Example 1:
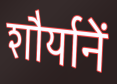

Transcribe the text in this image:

शौर्यानें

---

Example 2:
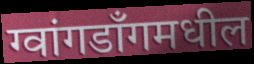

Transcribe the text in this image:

ग्वांगडाँगमधील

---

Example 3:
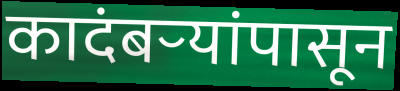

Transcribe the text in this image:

कादंबऱ्यांपासून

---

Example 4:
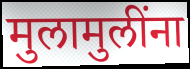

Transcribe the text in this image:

मुलामुलींना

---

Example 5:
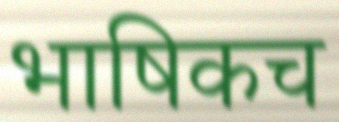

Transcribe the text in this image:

भाषिकच